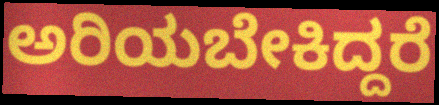
ಅರಿಯಬೇಕಿದ್ದರೆ